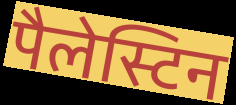
पैलेस्टिन